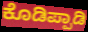
ಕೊಡಿಪ್ಪಾಡಿ